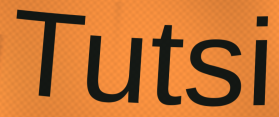
Tutsi